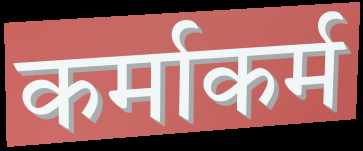
कर्माकर्म